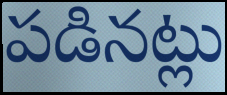
పడినట్లు